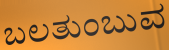
ಬಲತುಂಬುವ